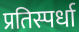
प्रतिस्पर्धा